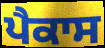
ਪੈਕਾਸ